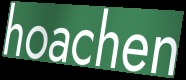
hoachen